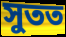
সুতত